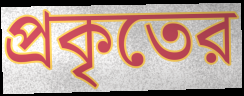
প্রকৃতের